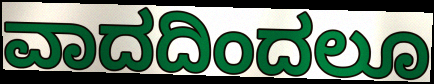
ವಾದದಿಂದಲೂ